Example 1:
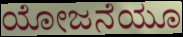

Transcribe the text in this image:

ಯೋಜನೆಯೂ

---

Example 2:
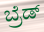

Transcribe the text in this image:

ಬ್ರೆಡ್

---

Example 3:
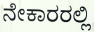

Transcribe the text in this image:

ನೇಕಾರರಲ್ಲಿ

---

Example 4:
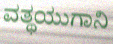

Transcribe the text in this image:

ವತ್ಥಯುಗಾನಿ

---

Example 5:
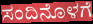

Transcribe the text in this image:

ಸಂದಿನೊಳಗೆ